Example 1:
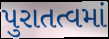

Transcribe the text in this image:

પુરાતત્વમાં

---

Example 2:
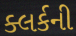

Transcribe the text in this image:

ક્લર્કની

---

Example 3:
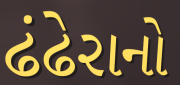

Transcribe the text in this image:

ઢંઢેરાનો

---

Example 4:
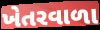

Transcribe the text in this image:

ખેતરવાળા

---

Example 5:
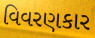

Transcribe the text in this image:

વિવરણકાર